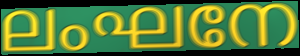
ലംഘനേ